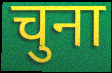
चुना